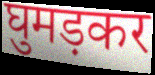
घुमड़कर